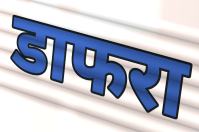
डाफरा